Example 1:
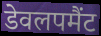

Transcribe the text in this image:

डेवलपमैंट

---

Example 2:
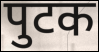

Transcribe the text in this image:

पुटक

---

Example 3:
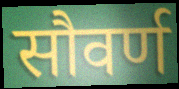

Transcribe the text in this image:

सौवर्ण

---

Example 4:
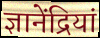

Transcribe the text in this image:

ज्ञानेंद्रियां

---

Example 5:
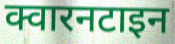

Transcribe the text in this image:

क्वारनटाइन